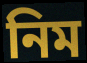
নিম